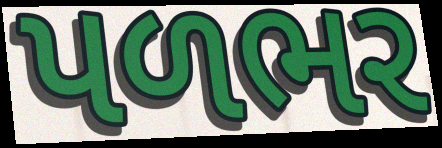
પળભર